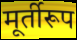
मूर्तीरूप